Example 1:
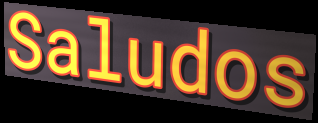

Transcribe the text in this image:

Saludos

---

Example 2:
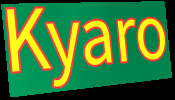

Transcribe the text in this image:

Kyaro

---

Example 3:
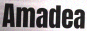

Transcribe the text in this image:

Amadea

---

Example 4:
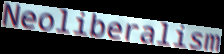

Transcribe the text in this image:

Neoliberalism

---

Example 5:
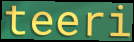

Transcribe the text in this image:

teeri